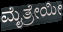
ಮೈತ್ರೇಯೀ